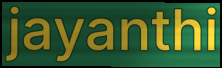
jayanthi